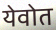
येवोत